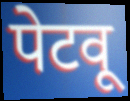
पेटवू